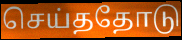
செய்ததோடு